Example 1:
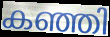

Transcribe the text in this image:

കഞ്ഞി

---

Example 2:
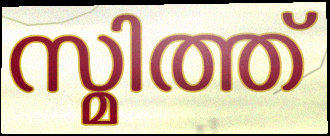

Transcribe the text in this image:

സ്മിത്ത്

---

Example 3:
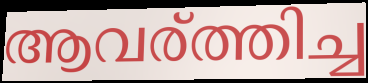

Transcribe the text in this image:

ആവര്ത്തിച്ച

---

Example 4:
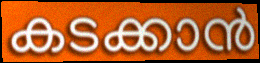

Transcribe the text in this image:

കടക്കാൻ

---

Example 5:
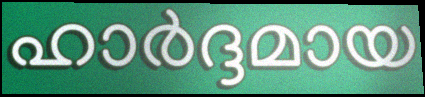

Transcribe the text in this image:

ഹാർദ്ദമായ